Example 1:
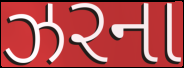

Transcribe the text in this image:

ઝરના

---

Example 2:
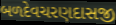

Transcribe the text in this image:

બળદેવચરણદાસજી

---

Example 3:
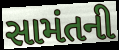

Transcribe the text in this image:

સામંતની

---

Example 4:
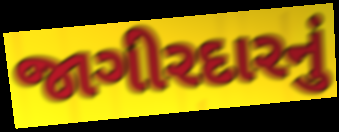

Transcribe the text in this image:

જાગીરદારનું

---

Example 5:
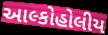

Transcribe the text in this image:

આલ્કોહોલીય